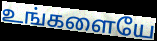
உங்களையே